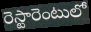
రెస్టారెంటులో